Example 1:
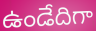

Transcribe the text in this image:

ఉండేదిగా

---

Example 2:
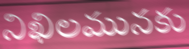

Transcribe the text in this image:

నిఖిలమునకు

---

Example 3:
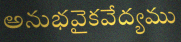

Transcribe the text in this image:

అనుభవైకవేద్యము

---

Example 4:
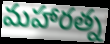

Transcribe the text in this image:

మహారత్న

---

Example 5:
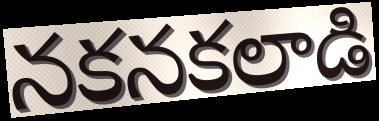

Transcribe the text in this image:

నకనకలాడి